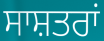
ਸਾਸ਼ਤਰਾਂ